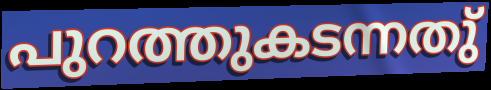
പുറത്തുകടന്നതു്